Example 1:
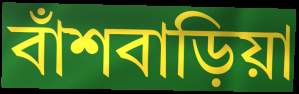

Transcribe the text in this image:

বাঁশবাড়িয়া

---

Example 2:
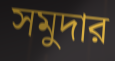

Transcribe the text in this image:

সমুদার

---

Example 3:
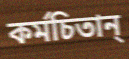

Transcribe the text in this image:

কর্মচিতান্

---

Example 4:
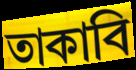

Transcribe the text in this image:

তাকাবি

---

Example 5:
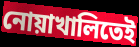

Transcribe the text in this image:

নোয়াখালিতেই